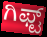
ಗಿಫ್ಟ್